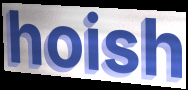
hoish